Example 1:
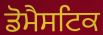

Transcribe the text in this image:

ਡੋਮੈਸਟਿਕ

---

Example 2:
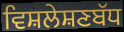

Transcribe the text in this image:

ਵਿਸ਼ਲੇਸ਼ਣਬੱਧ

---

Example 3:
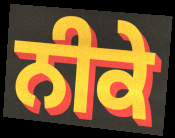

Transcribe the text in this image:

ਨੀਕੇ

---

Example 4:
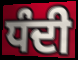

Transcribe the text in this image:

ਧੰਦੀ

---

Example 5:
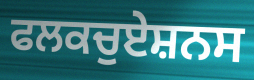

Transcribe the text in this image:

ਫਲਕਚੁਏਸ਼ਨਸ